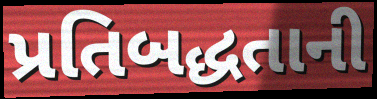
પ્રતિબદ્ધતાની